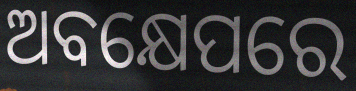
ଅବକ୍ଷେପରେ